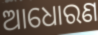
ଆଧୋରଣ